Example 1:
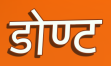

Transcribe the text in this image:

डोण्ट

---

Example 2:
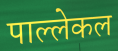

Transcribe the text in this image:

पाल्लेकल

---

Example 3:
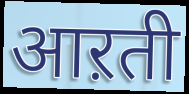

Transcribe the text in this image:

आऱती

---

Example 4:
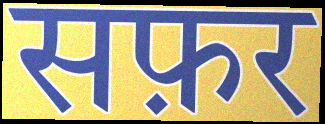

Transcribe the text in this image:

सफ़र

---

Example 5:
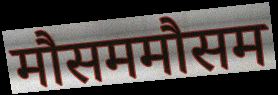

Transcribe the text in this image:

मौसममौसम